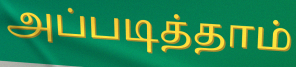
அப்படித்தாம்